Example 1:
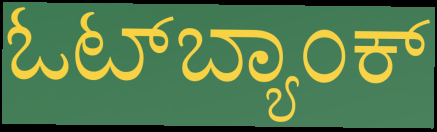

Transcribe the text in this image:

ಓಟ್‌ಬ್ಯಾಂಕ್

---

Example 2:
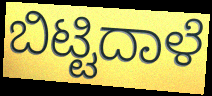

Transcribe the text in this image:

ಬಿಟ್ಟಿದಾಳೆ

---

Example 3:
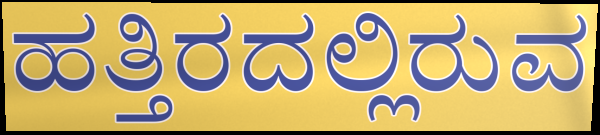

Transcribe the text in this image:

ಹತ್ತಿರದಲ್ಲಿರುವ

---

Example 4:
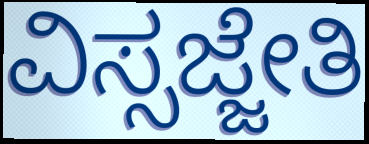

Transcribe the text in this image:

ವಿಸ್ಸಜ್ಜೇತಿ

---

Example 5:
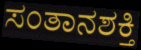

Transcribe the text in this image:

ಸಂತಾನಶಕ್ತಿ